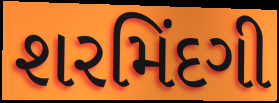
શરમિંદગી